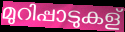
മുറിപ്പാടുകള്